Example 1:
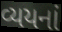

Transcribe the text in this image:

વ્યયનાં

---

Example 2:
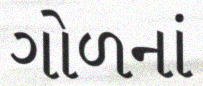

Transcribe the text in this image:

ગોળનાં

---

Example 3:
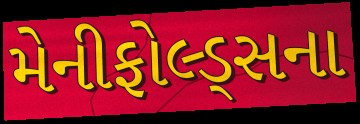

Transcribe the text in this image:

મેનીફોલ્ડ્સના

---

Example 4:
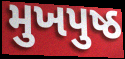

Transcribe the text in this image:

મુખપુષ્ઠ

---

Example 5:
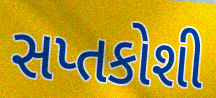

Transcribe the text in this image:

સપ્તકોશી